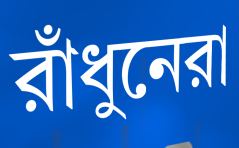
রাঁধুনেরা